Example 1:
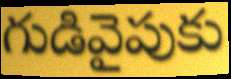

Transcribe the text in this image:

గుడివైపుకు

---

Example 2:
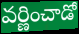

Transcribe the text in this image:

వర్ణించాడో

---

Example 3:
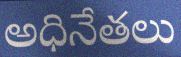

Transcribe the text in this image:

అధినేతలు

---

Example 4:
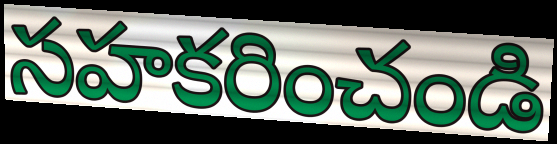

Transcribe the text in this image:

సహకరించండి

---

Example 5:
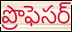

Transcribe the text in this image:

ప్రొఫెసర్